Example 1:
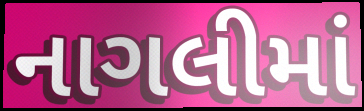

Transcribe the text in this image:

નાગલીમાં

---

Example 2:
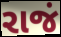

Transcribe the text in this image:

રાજં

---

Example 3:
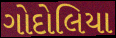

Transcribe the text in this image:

ગોદોલિયા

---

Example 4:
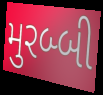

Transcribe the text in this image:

મુરબ્બી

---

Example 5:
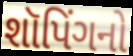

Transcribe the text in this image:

શૉપિંગનો